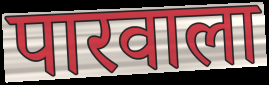
पारवाला